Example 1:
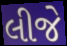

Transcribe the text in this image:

લીજે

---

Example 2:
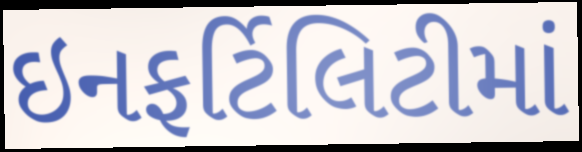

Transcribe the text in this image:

ઇનફર્ટિલિટીમાં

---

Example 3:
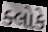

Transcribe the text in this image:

ક્લોકે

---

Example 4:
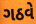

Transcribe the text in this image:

ગઠવે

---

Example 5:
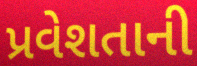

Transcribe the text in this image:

પ્રવેશતાની